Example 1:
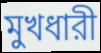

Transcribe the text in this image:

মুখধারী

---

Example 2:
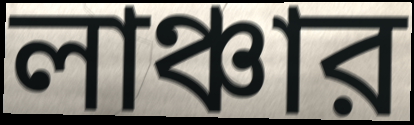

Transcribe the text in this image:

লাঞ্চার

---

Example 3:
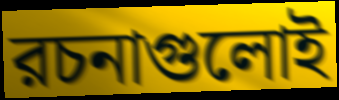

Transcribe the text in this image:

রচনাগুলোই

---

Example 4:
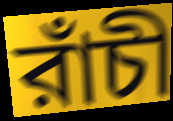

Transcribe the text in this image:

রাঁচী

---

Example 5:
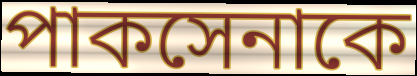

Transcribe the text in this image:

পাকসেনাকে